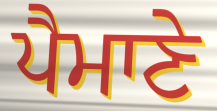
ਪੈਮਾਣੇ